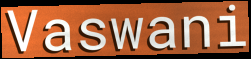
Vaswani